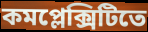
কমপ্লেক্সিটিতে